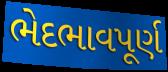
ભેદભાવપૂર્ણ